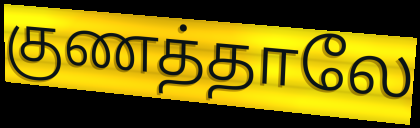
குணத்தாலே